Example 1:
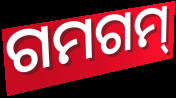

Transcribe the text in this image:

ଗମଗମ୍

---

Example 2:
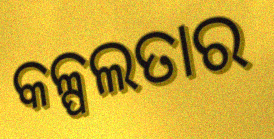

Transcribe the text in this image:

କଳ୍ପଲତାର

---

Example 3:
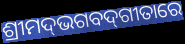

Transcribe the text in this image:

ଶ୍ରୀମଦ୍‌ଭଗବଦ୍‌ଗୀତାରେ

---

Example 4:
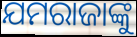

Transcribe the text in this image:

ଯମରାଜାଙ୍କୁ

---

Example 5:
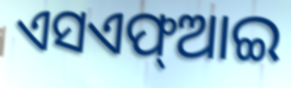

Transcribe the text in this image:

ଏସଏଫ୍ଆଇ